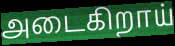
அடைகிறாய்